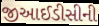
જીઆઈડીસીની